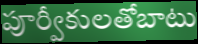
పూర్వీకులతోబాటు